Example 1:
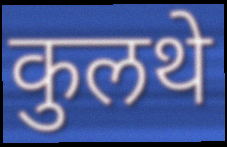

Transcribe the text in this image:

कुलथे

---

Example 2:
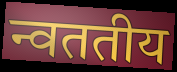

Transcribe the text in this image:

न्वततीय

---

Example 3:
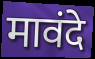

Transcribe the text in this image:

मावंदे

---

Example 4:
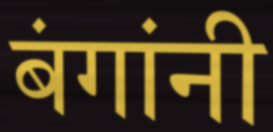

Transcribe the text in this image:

बंगांनी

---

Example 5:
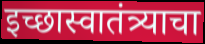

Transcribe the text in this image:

इच्छास्वातंत्र्याचा